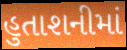
હુતાશનીમાં